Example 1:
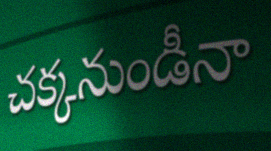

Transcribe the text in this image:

చక్కనుండీనా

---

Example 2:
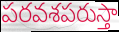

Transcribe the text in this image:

పరవశపరుస్తా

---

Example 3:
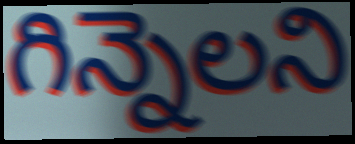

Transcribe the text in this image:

గిన్నెలని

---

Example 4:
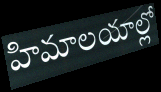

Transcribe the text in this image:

హిమాలయాల్లో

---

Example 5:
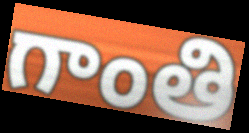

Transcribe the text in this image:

గాంతి